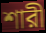
শারী